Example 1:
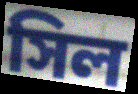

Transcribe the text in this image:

সিল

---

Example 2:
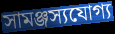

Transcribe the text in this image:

সামঞ্জস্যযোগ্য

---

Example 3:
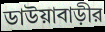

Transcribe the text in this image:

ডাউয়াবাড়ীর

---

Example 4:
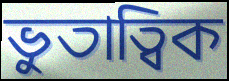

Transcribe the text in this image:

ভুতাত্বিক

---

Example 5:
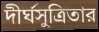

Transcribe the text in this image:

দীর্ঘসুত্রিতার